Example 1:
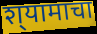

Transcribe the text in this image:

श्यामाचा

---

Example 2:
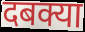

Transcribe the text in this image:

दबक्या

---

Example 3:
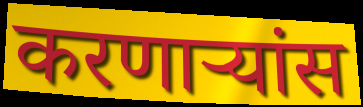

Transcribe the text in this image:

करणाऱ्यांस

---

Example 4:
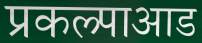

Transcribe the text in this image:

प्रकल्पाआड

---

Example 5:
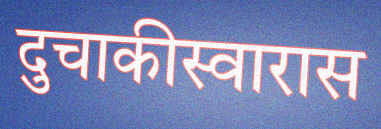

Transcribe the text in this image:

दुचाकीस्वारास